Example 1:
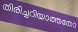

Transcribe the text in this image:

തിരിച്ചറിയാത്തതോ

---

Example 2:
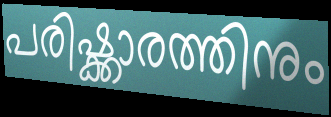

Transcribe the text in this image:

പരിഷ്ക്കാരത്തിനും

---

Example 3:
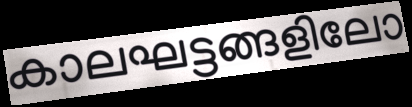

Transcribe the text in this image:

കാലഘട്ടങ്ങളിലോ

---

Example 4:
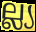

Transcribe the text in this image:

ല്ല്യ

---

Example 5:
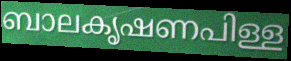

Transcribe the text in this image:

ബാലകൃഷണപിള്ള